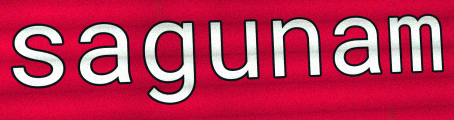
sagunam